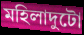
মহিলাদুটো